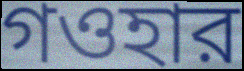
গওহার